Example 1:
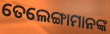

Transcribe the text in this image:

ତେଲେଙ୍ଗାମାନଙ୍କ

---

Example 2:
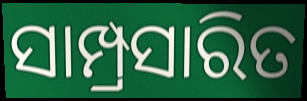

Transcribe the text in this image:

ସାମ୍ପ୍ରସାରିତ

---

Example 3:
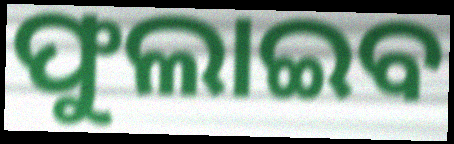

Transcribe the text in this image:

ଫୁଲାଇବ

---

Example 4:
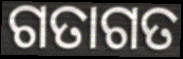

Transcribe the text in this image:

ଗତାଗତ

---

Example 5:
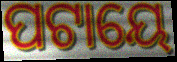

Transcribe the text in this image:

ପଟାୟେ